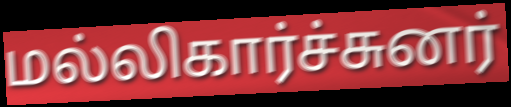
மல்லிகார்ச்சுனர்